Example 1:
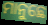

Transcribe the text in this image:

ମାନୁଛେ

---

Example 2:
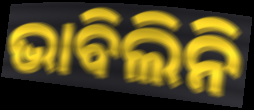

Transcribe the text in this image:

ଭାବିଲିନି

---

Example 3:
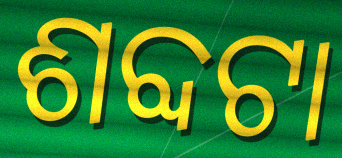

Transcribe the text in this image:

ଶବ୍ଦଟା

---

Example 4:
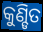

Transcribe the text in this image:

କୁଣ୍ଡିତ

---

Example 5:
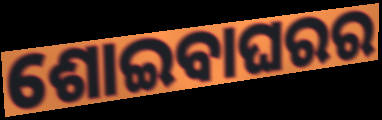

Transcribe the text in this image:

ଶୋଇବାଘରର